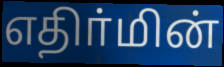
எதிர்மின்